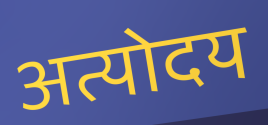
अत्योदय